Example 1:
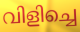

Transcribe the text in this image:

വിളിച്ചെ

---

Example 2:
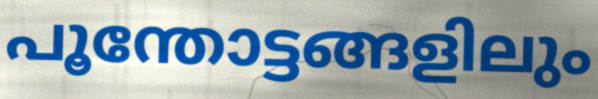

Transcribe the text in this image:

പൂന്തോട്ടങ്ങളിലും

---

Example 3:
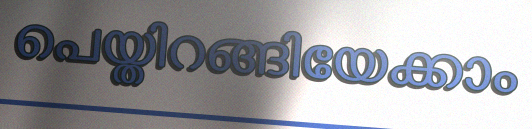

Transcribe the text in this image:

പെയ്തിറങ്ങിയേക്കാം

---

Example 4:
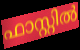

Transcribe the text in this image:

ഫാസ്റ്റിൽ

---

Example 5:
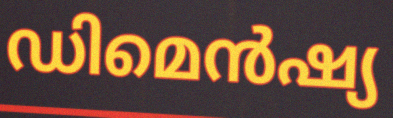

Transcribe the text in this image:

ഡിമെൻഷ്യ